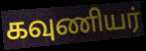
கவுணியர்